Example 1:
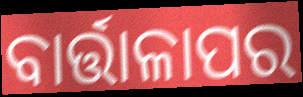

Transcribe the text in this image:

ବାର୍ତ୍ତାଳାପର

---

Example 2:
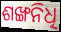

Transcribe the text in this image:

ଶଙ୍ଖନିଧି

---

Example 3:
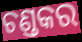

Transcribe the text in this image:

ଚଣ୍ଡକର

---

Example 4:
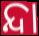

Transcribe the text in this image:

ନ୍ଦା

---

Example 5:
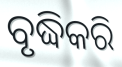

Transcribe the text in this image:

ବୃଦ୍ଧିକରି